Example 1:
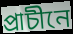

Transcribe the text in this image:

প্ৰাচীনে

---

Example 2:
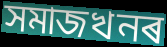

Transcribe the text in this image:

সমাজখনৰ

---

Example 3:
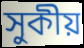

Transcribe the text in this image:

সুকীয়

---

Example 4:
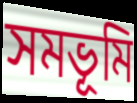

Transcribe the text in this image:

সমভূমি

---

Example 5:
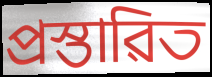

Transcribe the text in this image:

প্ৰস্তাৱিত